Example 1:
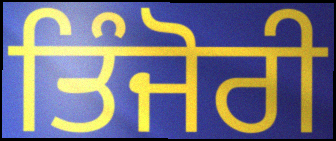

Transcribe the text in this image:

ਤਿੰਜੋਰੀ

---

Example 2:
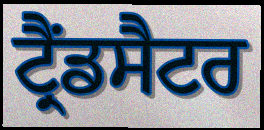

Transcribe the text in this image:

ਟ੍ਰੈਂਡਸੈਟਰ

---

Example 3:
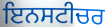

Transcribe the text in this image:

ਇਨਸਟੀਚਰ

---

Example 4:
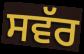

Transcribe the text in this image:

ਸਵੱਰ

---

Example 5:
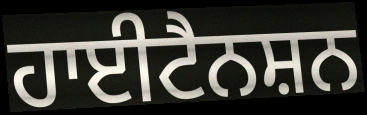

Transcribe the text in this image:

ਹਾਈਟੈਨਸ਼ਨ